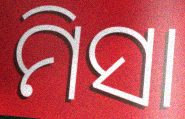
ମିସା